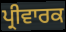
ਪ੍ਰੀਵਾਰਕ